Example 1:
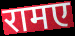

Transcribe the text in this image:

रामए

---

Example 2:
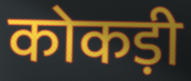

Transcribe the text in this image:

कोकड़ी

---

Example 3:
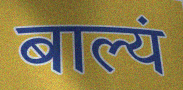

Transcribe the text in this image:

बाल्यं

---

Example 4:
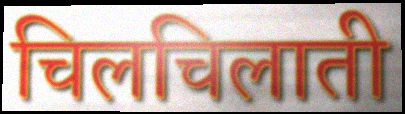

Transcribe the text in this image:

चिलचिलाती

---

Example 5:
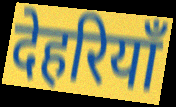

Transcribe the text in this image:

देहरियाँ